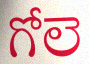
గోలె